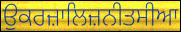
ਉਕਰਜ਼ਾਲਿਜ਼ਨੀਤਸੀਆ